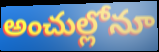
అంచుల్లోనూ